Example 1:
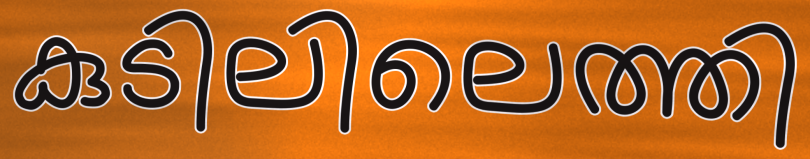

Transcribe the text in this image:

കുടിലിലെത്തി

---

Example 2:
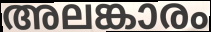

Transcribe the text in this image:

അലങ്കാരം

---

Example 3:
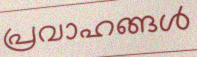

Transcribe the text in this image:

പ്രവാഹങ്ങൾ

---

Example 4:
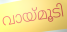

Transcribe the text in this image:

വായ്മൂടി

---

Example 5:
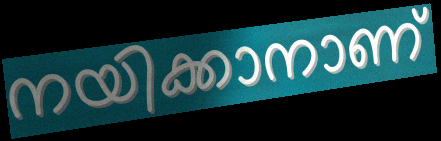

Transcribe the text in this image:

നയിക്കാനാണ്